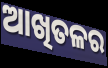
ଆଖିତଳର